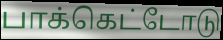
பாக்கெட்டோடு